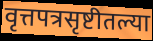
वृत्तपत्रसृष्टीतल्या